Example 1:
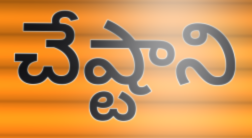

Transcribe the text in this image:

చేష్టాని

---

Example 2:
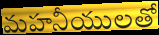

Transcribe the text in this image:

మహనీయులతో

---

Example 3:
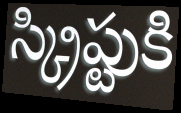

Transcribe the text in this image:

స్క్రిప్టుకి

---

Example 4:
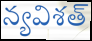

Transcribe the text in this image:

న్యవిశత్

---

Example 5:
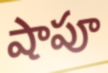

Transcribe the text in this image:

షాపూ